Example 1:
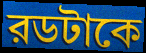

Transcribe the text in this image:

রডটাকে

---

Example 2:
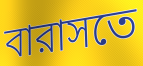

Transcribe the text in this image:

বারাসতে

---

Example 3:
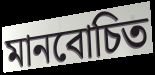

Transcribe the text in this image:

মানবোচিত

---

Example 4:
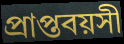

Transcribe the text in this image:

প্রাপ্তবয়সী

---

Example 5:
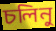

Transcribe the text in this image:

চলিনু